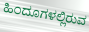
ಹಿಂದೂಗಳಲ್ಲಿರುವ